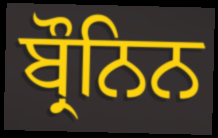
ਬ੍ਰੌਨਿਨ